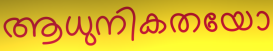
ആധുനികതയോ